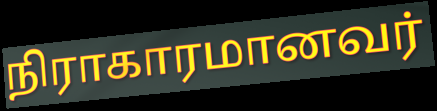
நிராகாரமானவர்